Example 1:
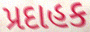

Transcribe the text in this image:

પ્રદાહક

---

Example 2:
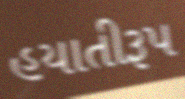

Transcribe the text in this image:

હયાતીરૂપ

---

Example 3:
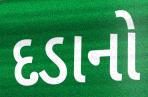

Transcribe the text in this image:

દડાનો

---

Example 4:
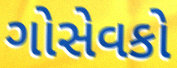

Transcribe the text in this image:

ગોસેવકો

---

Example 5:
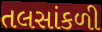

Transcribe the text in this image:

તલસાંકળી